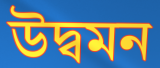
উদ্বমন